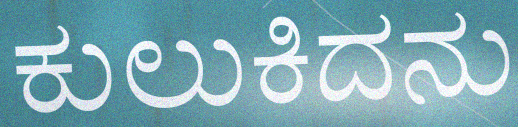
ಕುಲುಕಿದನು